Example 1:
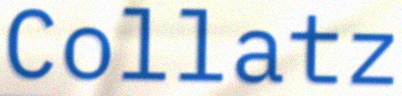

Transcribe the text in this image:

Collatz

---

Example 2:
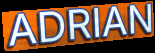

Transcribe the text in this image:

ADRIAN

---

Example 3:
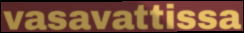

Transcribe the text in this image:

vasavattissa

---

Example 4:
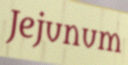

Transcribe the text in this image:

Jejunum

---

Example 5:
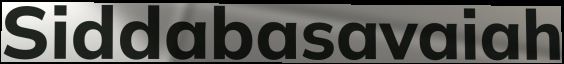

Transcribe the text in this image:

Siddabasavaiah